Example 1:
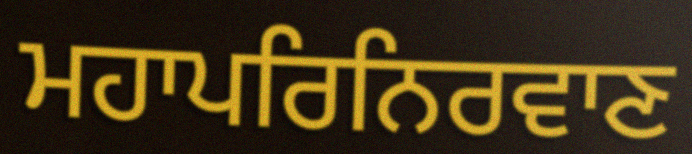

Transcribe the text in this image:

ਮਹਾਪਰਿਨਿਰਵਾਣ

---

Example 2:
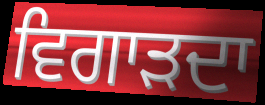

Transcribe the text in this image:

ਵਿਗਾੜਦਾ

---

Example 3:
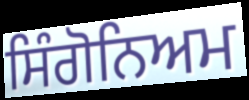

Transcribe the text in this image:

ਸਿੰਗੋਨਿਅਮ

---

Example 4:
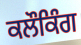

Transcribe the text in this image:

ਕਲੌਕਿੰਗ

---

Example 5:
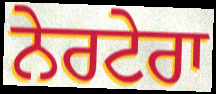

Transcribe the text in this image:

ਨੇਰਟੇਰਾ